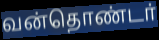
வன்தொண்டர்